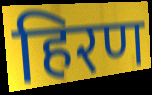
हिरण